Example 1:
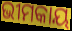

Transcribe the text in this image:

ଭୀମକାୟ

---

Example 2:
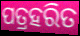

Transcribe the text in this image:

ପତ୍ରହରିତ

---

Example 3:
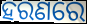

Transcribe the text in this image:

ହରଣରେ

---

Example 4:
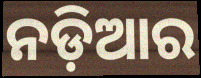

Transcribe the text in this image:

ନଡ଼ିଆର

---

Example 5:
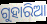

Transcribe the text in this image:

ଗୁହାରିଆ